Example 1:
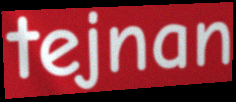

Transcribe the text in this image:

tejnan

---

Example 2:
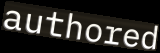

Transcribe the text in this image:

authored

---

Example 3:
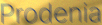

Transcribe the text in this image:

Prodenia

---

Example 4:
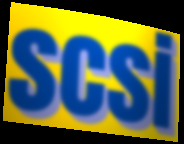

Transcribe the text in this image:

scsi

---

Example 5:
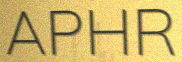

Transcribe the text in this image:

APHR